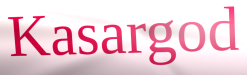
Kasargod